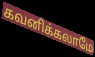
கவனிக்கலாமே